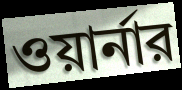
ওয়ার্নার